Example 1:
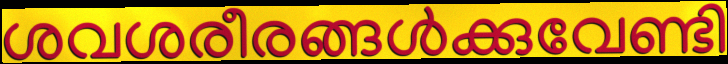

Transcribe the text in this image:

ശവശരീരങ്ങൾക്കുവേണ്ടി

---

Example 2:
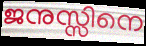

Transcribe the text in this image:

ജനുസ്സിനെ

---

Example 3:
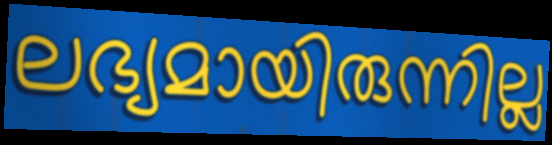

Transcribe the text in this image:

ലഭ്യമായിരുന്നില്ല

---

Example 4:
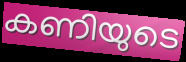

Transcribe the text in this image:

കണിയുടെ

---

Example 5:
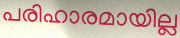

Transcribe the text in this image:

പരിഹാരമായില്ല